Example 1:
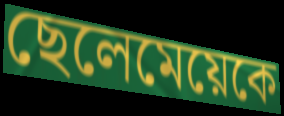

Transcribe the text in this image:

ছেলেমেয়েকে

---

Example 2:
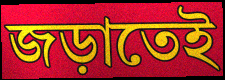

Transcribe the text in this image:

জড়াতেই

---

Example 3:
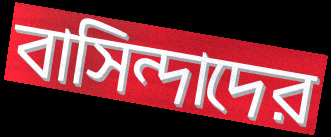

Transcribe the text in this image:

বাসিন্দাদের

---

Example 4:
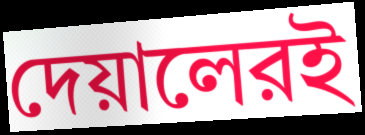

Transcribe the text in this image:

দেয়ালেরই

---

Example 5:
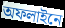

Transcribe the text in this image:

অফলাইনে